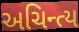
અચિન્ત્ય